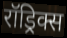
रॉड्रिक्स